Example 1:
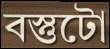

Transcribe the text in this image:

বস্তুটো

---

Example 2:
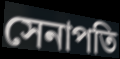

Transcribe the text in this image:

সেনাপতি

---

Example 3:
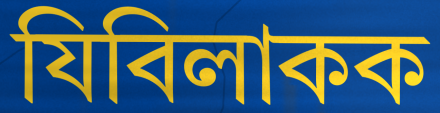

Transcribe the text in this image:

যিবিলাকক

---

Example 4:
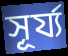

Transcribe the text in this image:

সূৰ্য্য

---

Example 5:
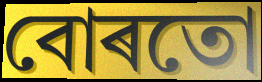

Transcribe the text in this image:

বোৰতো